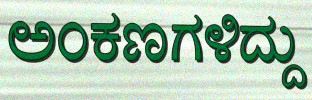
ಅಂಕಣಗಳಿದ್ದು